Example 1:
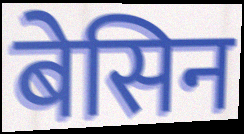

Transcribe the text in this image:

बेसिन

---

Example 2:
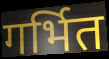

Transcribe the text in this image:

गर्भित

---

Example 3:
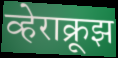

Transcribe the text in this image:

व्हेराक्रूझ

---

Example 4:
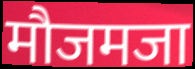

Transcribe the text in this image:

मौजमजा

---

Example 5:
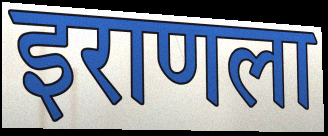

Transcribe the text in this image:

इराणला